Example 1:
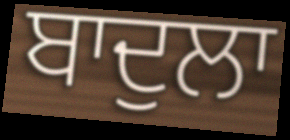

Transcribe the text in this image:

ਬਾਦੁਲਾ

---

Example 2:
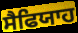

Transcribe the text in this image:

ਸੈਫਿਯਾਹ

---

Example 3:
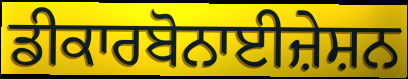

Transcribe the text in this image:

ਡੀਕਾਰਬੋਨਾਈਜ਼ੇਸ਼ਨ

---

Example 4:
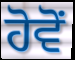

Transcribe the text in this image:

ਹੋਵੋਂ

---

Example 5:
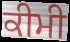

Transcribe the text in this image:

ਕੀਮੀ